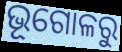
ଭୂଗୋଳରୁ